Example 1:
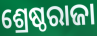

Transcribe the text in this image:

ଶ୍ରେଷ୍ଠରାଜା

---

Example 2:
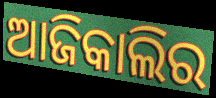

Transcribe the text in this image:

ଆଜିକାଲିର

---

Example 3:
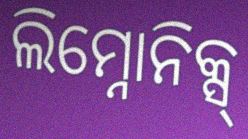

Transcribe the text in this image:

ଲିମ୍ନୋନିକ୍ସ୍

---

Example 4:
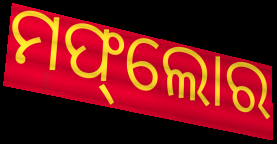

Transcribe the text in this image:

ମଫ୍‌ଲୋର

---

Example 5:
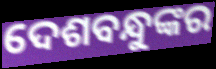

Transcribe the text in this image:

ଦେଶବନ୍ଧୁଙ୍କର